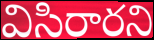
విసిరారని